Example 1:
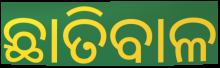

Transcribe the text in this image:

ଛାତିବାଳ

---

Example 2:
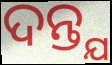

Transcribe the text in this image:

ଦନ୍ତ୍ଯ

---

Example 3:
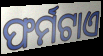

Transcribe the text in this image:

ଫର୍ମଟାଏ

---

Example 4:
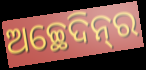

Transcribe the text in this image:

ଅଚ୍ଛେଦିନ୍‌ର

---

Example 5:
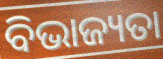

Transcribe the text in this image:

ବିଭାଜ୍ୟତା